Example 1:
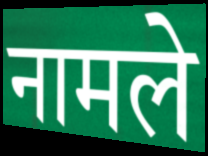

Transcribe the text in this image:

नामले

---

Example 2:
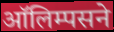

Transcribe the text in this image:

ऑलिम्पसने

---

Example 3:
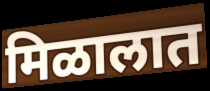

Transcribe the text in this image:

मिळालात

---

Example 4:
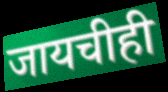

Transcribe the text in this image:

जायचीही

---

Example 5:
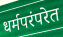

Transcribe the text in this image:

धर्मपरंपरेत